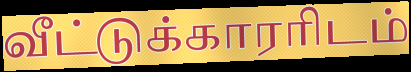
வீட்டுக்காரரிடம்